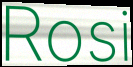
Rosi